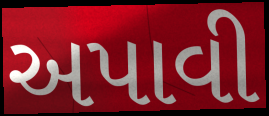
અપાવી